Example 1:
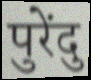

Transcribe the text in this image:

पुरेंदु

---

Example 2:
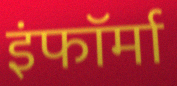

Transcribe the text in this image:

इंफॉर्मा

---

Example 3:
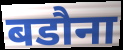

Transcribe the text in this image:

बडौना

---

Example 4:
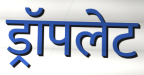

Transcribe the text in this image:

ड्रॉपलेट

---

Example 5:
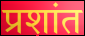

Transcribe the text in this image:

प्रशांत